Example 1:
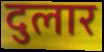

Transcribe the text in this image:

दुलार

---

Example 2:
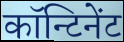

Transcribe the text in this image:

कॉन्टिनेंट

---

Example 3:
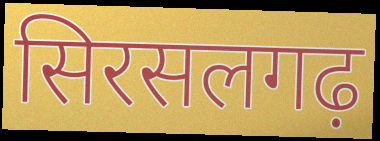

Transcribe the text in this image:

सिरसलगढ़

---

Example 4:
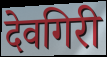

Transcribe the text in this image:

देवगिरी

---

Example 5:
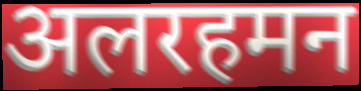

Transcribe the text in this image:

अलरहमन